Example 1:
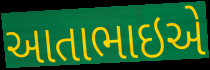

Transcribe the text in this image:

આતાભાઇએ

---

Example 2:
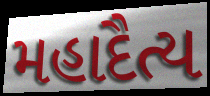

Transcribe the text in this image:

મહાદૈત્ય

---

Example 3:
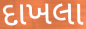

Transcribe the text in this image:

દાખલા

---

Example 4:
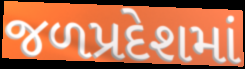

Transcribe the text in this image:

જળપ્રદેશમાં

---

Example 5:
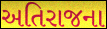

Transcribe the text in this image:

અતિરાજના